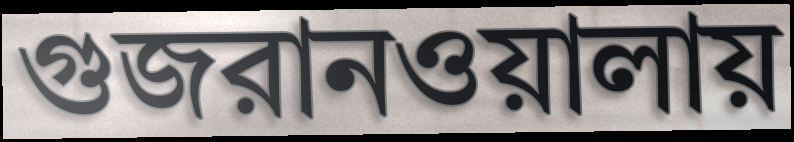
গুজরানওয়ালায়